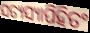
ସତ୍ୟସ୍ୟାପିହିତଂ